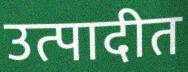
उत्पादीत